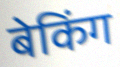
बेकिंग